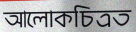
আলোকচিত্ৰত